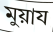
মুয়ায